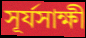
সূর্যসাক্ষী